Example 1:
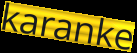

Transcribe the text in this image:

karanke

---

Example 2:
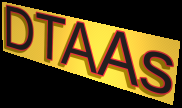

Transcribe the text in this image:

DTAAs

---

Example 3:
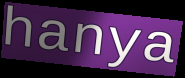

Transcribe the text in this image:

hanya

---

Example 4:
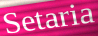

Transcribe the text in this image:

Setaria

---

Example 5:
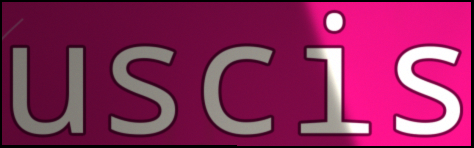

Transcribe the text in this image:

uscis